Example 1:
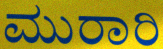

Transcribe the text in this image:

ಮುರಾರಿ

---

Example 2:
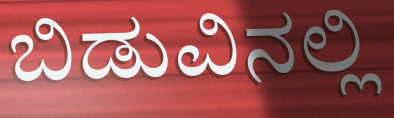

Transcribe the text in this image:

ಬಿಡುವಿನಲ್ಲಿ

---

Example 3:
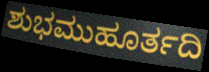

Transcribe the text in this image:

ಶುಭಮುಹೂರ್ತದಿ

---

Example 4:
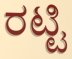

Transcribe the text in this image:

ರಟ್ಟಿ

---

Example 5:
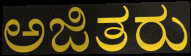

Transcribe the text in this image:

ಅಜಿತರು